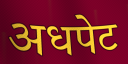
अधपेट